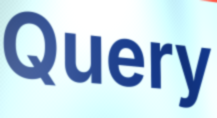
Query